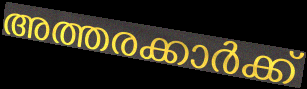
അത്തരക്കാർക്ക്